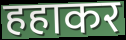
हहाकर